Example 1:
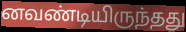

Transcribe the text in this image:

னவண்டியிருந்தது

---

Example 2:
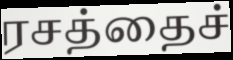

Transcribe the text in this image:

ரசத்தைச்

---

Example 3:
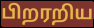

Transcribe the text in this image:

பிறரறிய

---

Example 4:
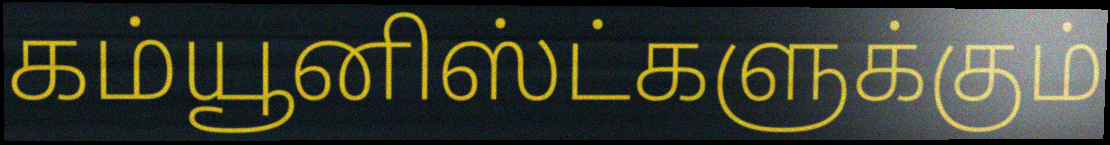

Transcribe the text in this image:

கம்யூனிஸ்ட்களுக்கும்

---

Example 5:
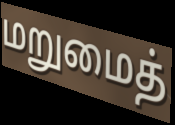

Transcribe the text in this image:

மறுமைத்